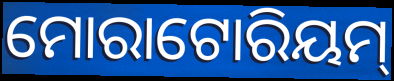
ମୋରାଟୋରିୟମ୍